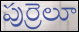
పుర్రెలూ